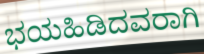
ಭಯಹಿಡಿದವರಾಗಿ